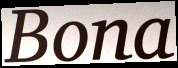
Bona